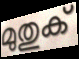
മുതുക്